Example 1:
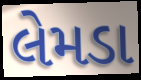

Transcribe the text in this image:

લેમડા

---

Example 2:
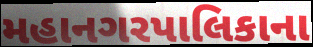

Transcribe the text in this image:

મહાનગરપાલિકાના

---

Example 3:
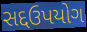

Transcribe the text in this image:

સદ્દઉપયોગ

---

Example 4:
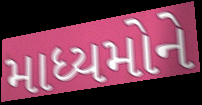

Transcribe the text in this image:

માધ્યમોને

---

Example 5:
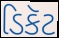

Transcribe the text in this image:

ડિકૅટ